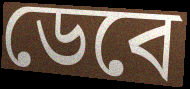
ডেবে